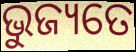
ଭୁଜ୍ୟତେ